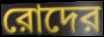
রোদের